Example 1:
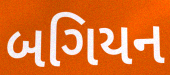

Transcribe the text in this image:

બગિયન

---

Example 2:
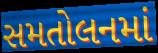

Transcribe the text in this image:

સમતોલનમાં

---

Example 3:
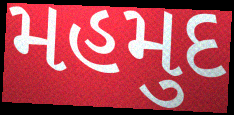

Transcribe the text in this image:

મહમુદ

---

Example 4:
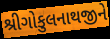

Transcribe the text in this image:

શ્રીગોકુલનાથજીને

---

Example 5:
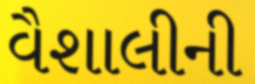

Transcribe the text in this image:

વૈશાલીની